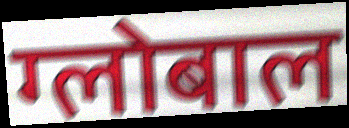
ग्लोबाल